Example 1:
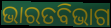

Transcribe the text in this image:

ଭାରତବିଭାଗ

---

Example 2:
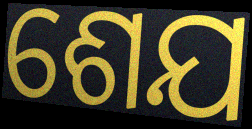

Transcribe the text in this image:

ଶେଯ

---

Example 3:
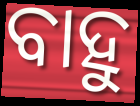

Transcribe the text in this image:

ବାହୁ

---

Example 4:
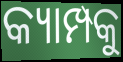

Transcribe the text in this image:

କ୍ୟାମ୍ପକୁ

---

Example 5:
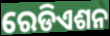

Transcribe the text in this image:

ରେଡିଏଶନ